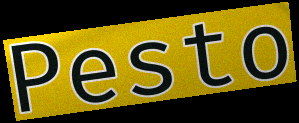
Pesto